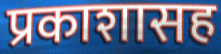
प्रकाशासह